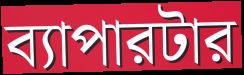
ব্যাপারটার